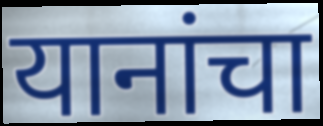
यानांचा